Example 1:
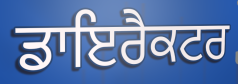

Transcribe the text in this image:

ਡਾਇਰੈਕਟਰ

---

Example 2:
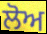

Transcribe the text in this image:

ਲੋਅ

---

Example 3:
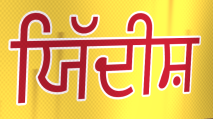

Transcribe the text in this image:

ਯਿੱਦੀਸ਼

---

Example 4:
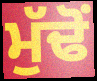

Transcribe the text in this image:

ਮੁੱਢੋਂ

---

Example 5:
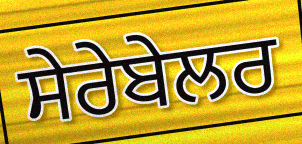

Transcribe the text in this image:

ਸੇਰੇਬੇਲਰ